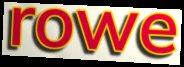
rowe